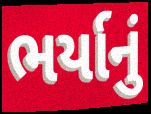
ભર્યાનું